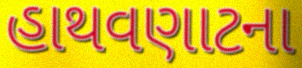
હાથવણાટના